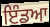
ਇੰਡਆ